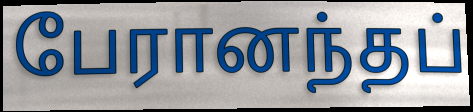
பேரானந்தப்